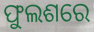
ଫୁଲଶରେ